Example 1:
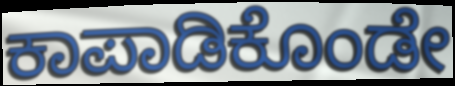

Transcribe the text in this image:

ಕಾಪಾಡಿಕೊಂಡೇ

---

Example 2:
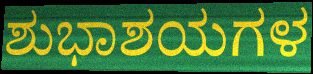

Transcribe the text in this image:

ಶುಭಾಶಯಗಳ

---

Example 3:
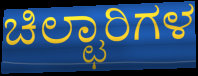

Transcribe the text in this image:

ಚಿಲ್ಟಾರಿಗಳ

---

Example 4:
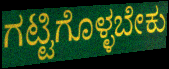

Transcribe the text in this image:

ಗಟ್ಟಿಗೊಳ್ಳಬೇಕು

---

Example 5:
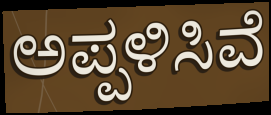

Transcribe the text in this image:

ಅಪ್ಪಳಿಸಿವೆ